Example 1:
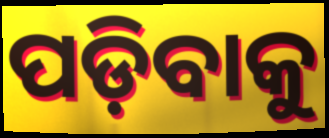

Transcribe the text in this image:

ପଡ଼ିବାକୁ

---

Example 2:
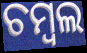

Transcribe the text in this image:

ଚମ୍ବଲ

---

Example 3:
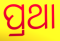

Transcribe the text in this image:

ପ୍ରଥା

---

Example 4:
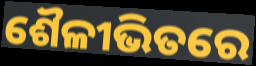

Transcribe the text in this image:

ଶୈଳୀଭିତରେ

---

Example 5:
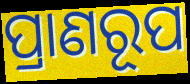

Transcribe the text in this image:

ପ୍ରାଣରୂପ